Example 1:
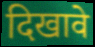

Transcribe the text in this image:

दिखावे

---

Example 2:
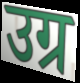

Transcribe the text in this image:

उग्र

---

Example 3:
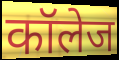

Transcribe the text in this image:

कॉलेज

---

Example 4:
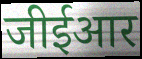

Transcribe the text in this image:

जीईआर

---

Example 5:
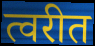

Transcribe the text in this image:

त्वरीत